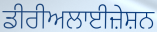
ਡੀਰੀਅਲਾਈਜ਼ੇਸ਼ਨ